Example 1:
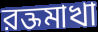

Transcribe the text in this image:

রক্তমাখা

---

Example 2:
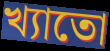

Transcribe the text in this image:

খ্যাতো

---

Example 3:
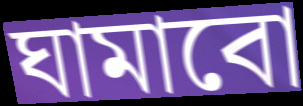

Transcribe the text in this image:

ঘামাবো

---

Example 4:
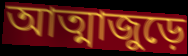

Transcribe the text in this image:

আত্মাজুড়ে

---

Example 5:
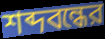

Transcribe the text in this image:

শব্দবন্ধের